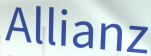
Allianz